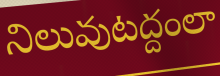
నిలువుటద్దంలా